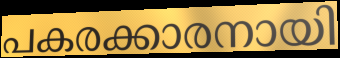
പകരക്കാരനായി